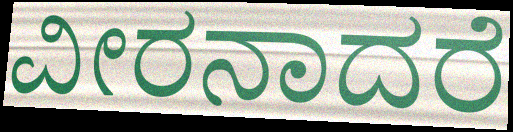
ವೀರನಾದರೆ